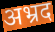
अभ्रद